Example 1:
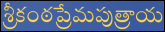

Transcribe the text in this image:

శ్రీకంఠప్రేమపుత్రాయ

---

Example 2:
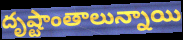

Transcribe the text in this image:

దృష్టాంతాలున్నాయి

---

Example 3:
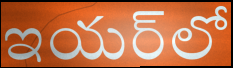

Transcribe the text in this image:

ఇయర్‌లో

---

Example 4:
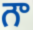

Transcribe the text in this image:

గౌ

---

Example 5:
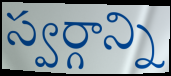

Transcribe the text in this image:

స్వర్గాన్ని